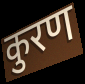
कुरण